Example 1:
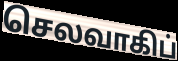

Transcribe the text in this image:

செலவாகிப்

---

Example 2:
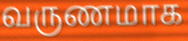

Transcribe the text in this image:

வருணமாக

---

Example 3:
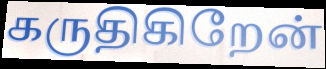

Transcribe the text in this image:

கருதிகிறேன்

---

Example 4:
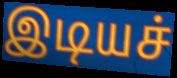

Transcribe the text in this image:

இடியச்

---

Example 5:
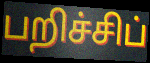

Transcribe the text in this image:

பறிச்சிப்